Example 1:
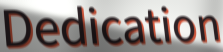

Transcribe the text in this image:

Dedication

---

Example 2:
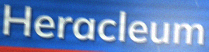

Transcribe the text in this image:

Heracleum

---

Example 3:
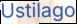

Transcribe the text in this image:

Ustilago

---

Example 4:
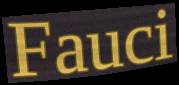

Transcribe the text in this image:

Fauci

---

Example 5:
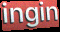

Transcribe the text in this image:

ingin